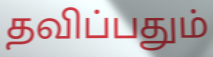
தவிப்பதும்